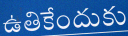
ఉతికేందుకు